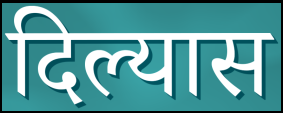
दिल्यास